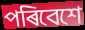
পৰিবেশে